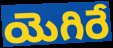
యెగిరే